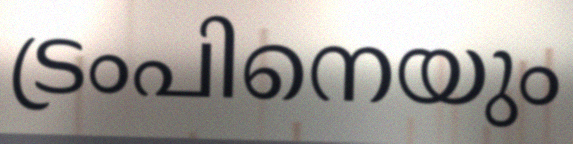
ട്രംപിനെയും